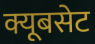
क्यूबसेट